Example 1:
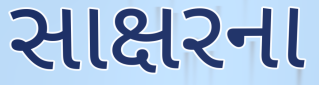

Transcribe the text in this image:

સાક્ષરના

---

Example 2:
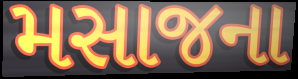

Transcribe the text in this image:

મસાજના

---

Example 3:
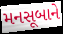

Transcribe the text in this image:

મનસૂબાને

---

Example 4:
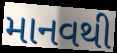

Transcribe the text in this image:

માનવથી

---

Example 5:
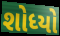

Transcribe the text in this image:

શોધ્યો